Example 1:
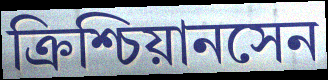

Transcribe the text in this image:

ক্রিশ্চিয়ানসেন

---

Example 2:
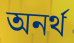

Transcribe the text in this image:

অনর্থ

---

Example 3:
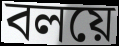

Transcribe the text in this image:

বলয়ে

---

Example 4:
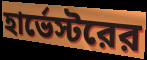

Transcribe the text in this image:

হার্ভেস্টরের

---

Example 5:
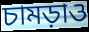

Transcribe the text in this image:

চামড়াও